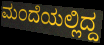
ಮಂದೆಯಲ್ಲಿದ್ದ